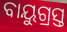
ବାୟୁଗ୍ରସ୍ତ